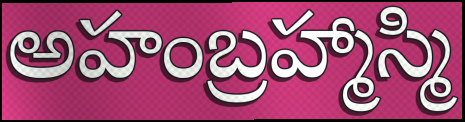
అహంబ్రహ్మాస్మి